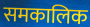
समकालिक